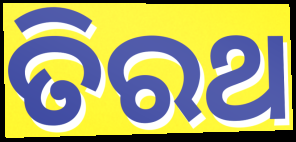
ତିରଥ